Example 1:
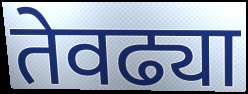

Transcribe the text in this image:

तेवढ्या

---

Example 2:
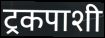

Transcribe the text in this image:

ट्रकपाशी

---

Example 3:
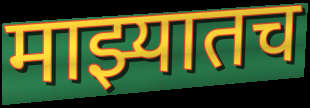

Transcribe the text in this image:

माझ्यातच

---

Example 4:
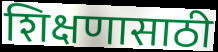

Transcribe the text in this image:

शिक्षणासाठी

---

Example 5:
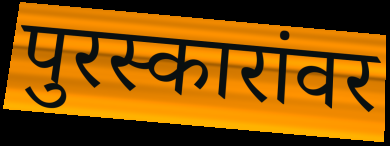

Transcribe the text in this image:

पुरस्कारांवर